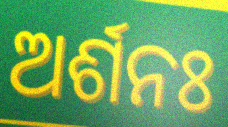
ଅର୍ଶନଃ